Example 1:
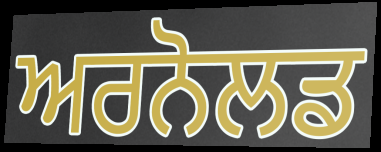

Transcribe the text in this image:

ਅਰਨੋਲਡ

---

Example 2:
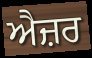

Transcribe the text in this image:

ਐਜ਼ਰ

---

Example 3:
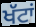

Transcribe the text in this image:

ਖੱਟਾਂ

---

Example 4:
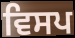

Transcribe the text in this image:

ਵਿਸਪ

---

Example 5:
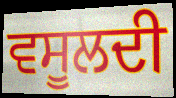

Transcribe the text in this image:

ਵਸੂਲਦੀ